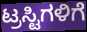
ಟ್ರಸ್ಟಿಗಳಿಗೆ